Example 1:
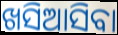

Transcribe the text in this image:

ଖସିଆସିବା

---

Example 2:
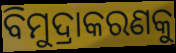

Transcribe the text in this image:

ବିମୁଦ୍ରାକରଣକୁ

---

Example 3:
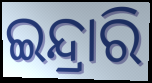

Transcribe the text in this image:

ଇନ୍ଦ୍ରାରି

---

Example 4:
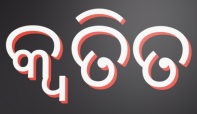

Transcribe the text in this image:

କ୍ୱତିତ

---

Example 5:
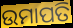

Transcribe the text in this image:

ଉମାପତି